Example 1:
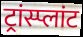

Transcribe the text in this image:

ट्रांस्प्लांट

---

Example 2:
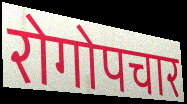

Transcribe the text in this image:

रोगोपचार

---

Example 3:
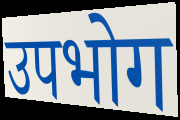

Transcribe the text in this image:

उपभोग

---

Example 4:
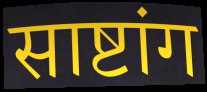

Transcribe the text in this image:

साष्टांग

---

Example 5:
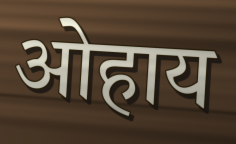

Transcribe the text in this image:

ओहाय